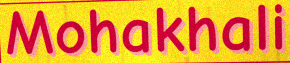
Mohakhali